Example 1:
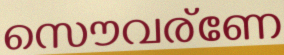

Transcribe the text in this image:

സൌവര്ണേ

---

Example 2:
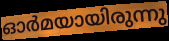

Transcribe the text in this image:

ഓർമയായിരുന്നു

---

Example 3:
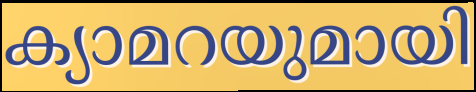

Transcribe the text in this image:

ക്യാമറയുമായി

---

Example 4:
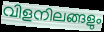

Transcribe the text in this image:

വിളനിലങ്ങളും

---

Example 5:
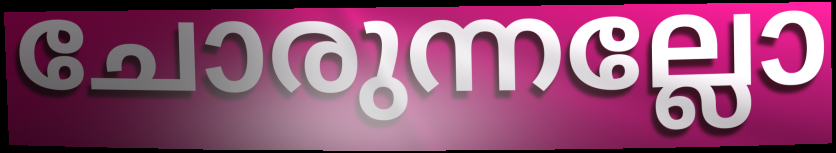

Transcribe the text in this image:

ചോരുന്നല്ലോ